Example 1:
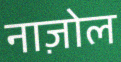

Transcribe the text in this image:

नाज़ोल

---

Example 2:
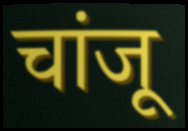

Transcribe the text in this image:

चांजू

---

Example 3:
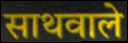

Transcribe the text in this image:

साथवाले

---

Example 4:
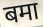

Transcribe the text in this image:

बमा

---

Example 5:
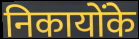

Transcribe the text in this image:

निकायोंके